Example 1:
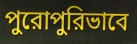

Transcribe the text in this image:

পুরোপুরিভাবে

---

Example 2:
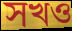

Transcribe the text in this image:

সখও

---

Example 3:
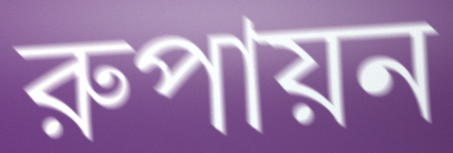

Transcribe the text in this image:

রুপায়ন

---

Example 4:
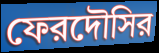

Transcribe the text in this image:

ফেরদৌসির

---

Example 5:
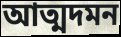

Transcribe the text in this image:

আত্মদমন